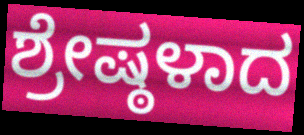
ಶ್ರೇಷ್ಠಳಾದ